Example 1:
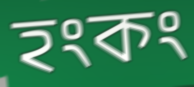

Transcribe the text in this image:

হংকং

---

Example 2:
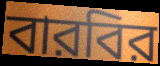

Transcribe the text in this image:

বারবির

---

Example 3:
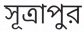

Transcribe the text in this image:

সূত্রাপুর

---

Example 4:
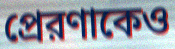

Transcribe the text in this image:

প্রেরণাকেও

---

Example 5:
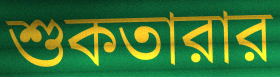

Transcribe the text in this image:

শুকতারার